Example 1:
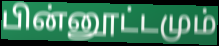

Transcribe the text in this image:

பின்னூட்டமும்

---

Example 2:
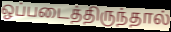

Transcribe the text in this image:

ஒப்படைத்திருந்தால்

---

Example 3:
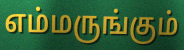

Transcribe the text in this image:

எம்மருங்கும்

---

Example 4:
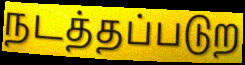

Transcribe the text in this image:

நடத்தப்படுற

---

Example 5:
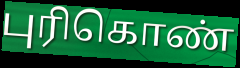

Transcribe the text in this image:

புரிகொண்